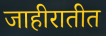
जाहीरातीत